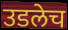
उडलेच